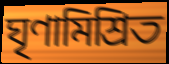
ঘৃণামিশ্রিত